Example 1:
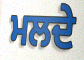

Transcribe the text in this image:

ਮਲਦੇ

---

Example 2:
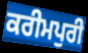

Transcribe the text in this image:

ਕਰੀਮਪੁਰੀ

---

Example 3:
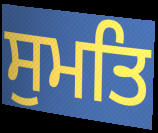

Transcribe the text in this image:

ਸੁਮਤਿ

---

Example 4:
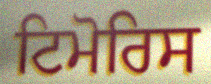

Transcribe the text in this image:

ਟਿਮੋਰਿਸ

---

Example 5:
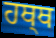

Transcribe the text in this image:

ਹਥ੍ਥ